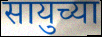
सायुच्या